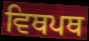
ਵਿਥਪਥ